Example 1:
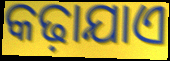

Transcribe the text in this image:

କଢ଼ାଯାଏ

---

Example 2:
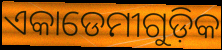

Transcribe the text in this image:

ଏକାଡେମୀଗୁଡ଼ିକ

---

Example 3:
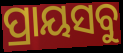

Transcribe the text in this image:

ପ୍ରାୟସବୁ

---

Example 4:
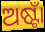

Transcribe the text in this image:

ଅଷ୍ଟାଁ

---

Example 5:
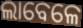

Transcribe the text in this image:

ଲାବେଳେ